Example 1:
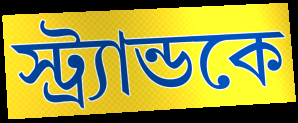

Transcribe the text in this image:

স্ট্র্যান্ডকে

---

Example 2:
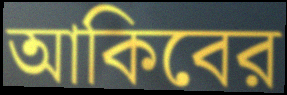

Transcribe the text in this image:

আকিবের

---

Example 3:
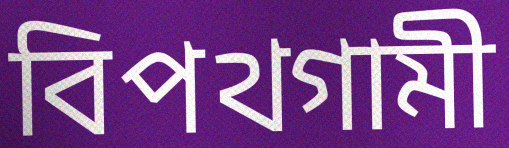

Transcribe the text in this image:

বিপথগামী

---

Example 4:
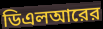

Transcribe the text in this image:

ডিএলআরের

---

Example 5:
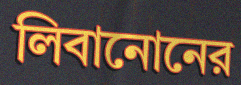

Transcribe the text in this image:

লিবানোনের